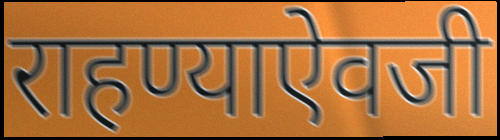
राहण्याऐवजी